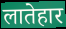
लातेहार